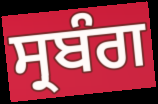
ਸ੍ਰਬੰਗ